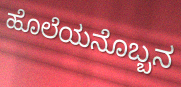
ಹೊಲೆಯನೊಬ್ಬನ